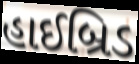
હાઈબ્રિડ